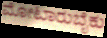
ಮೋಟಾರುಬೈಕು